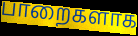
பாறைகளாக